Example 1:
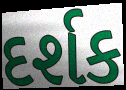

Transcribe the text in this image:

દર્શક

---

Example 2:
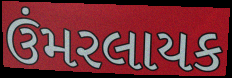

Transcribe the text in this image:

ઉંમરલાયક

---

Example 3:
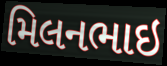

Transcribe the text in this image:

મિલનભાઇ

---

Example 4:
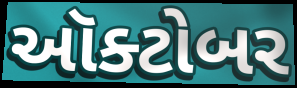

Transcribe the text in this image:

ઑક્ટોબર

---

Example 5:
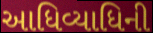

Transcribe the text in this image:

આધિવ્યાધિની